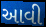
આવી